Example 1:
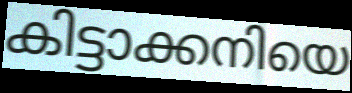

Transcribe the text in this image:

കിട്ടാക്കനിയെ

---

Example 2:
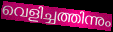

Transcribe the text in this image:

വെളിച്ചത്തിന്നും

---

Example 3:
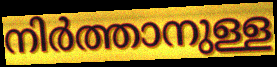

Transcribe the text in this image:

നിർത്താനുള്ള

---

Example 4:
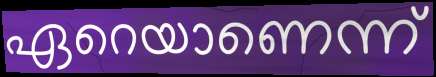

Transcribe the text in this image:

ഏറെയാണെന്ന്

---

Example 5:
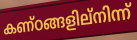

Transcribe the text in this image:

കണ്ഠങ്ങളില്നിന്ന്